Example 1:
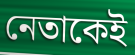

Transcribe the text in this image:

নেতাকেই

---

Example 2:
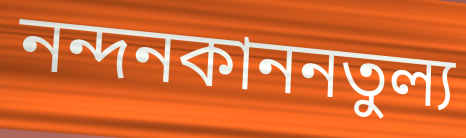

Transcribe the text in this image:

নন্দনকাননতুল্য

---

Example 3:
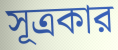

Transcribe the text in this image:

সূত্রকার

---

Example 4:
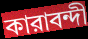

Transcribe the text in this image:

কারাবন্দী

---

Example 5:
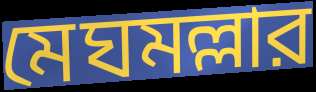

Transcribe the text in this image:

মেঘমল্লার